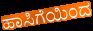
ಹಾಸಿಗೆಯಿಂದ